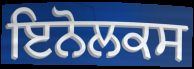
ਇਨੋਲਕਸ